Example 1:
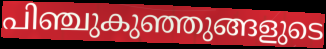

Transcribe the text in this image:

പിഞ്ചുകുഞ്ഞുങ്ങളുടെ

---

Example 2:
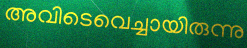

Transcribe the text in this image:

അവിടെവെച്ചായിരുന്നു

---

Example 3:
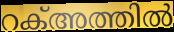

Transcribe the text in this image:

റക്അത്തിൽ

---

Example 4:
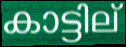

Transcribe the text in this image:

കാട്ടില്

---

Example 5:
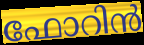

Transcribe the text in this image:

ഫോറിൻ